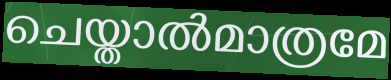
ചെയ്താൽമാത്രമേ